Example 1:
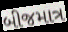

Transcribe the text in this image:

બીજમાત્ર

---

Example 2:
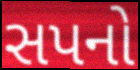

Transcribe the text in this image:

સપનો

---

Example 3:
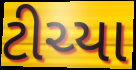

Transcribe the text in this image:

ટીચ્યા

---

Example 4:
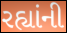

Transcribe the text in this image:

રહ્યાંની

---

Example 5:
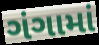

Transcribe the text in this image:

ગંગામાં